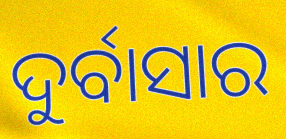
ଦୁର୍ବାସାର